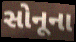
સોનૂના